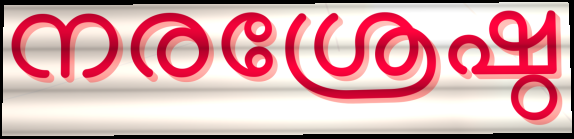
നരശ്രേഷ്ഠ